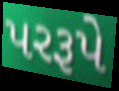
પરરૂપે